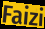
Faizi